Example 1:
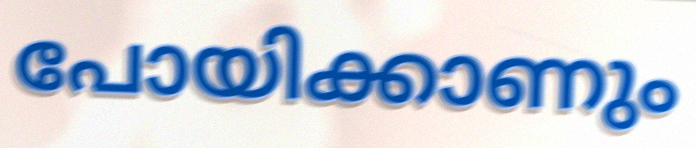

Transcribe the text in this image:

പോയിക്കാണും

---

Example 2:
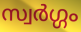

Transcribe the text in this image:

സ്വർഗ്ഗം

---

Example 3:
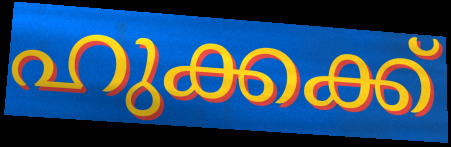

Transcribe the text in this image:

ഹുക്കക്ക്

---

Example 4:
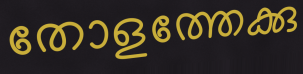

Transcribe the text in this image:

തോളത്തേക്കു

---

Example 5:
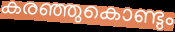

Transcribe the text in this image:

കരഞ്ഞുകൊണ്ടും